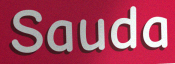
Sauda